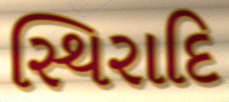
સ્થિરાદિ